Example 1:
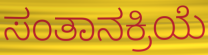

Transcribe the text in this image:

ಸಂತಾನಕ್ರಿಯೆ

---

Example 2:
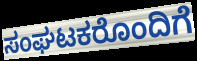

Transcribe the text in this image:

ಸಂಘಟಕರೊಂದಿಗೆ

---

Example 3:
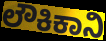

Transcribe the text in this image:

ಲೌಕಿಕಾನಿ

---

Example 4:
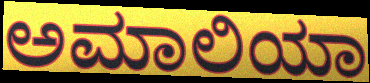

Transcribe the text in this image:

ಅಮಾಲಿಯಾ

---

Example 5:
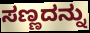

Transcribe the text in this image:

ಸಣ್ಣದನ್ನು